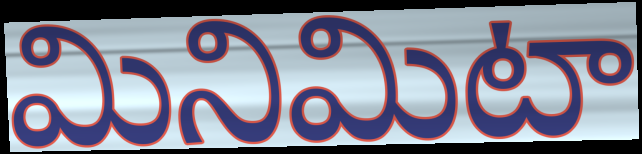
మినిమిటా